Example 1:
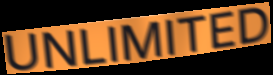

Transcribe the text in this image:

UNLIMITED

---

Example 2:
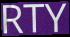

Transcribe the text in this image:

RTY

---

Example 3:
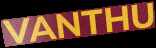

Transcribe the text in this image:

VANTHU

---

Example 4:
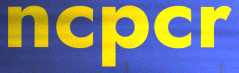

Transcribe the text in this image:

ncpcr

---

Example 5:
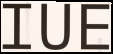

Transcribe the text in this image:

IUE